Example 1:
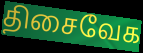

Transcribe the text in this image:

திசைவேக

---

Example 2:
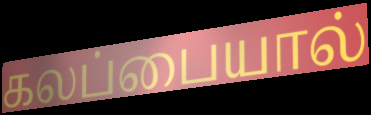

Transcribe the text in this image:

கலப்பையால்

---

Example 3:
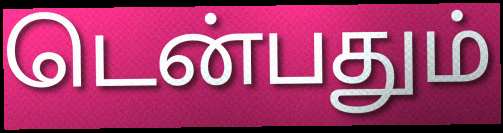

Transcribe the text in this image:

டென்பதும்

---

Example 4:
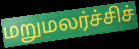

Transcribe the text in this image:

மறுமலர்ச்சிச்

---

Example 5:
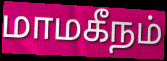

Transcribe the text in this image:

மாமகீநம்